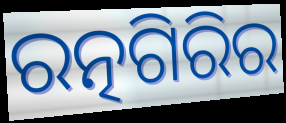
ରତ୍ନଗିରିର